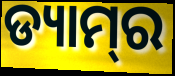
ଡ୍ୟାମ୍‍ର